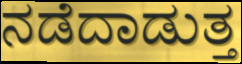
ನಡೆದಾಡುತ್ತ